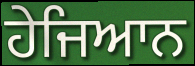
ਹੇਜਿਆਨ